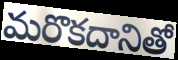
మరొకదానితో